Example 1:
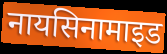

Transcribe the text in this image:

नायसिनामाइड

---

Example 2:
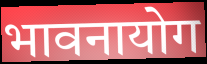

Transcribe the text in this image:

भावनायोग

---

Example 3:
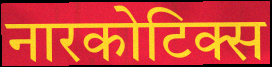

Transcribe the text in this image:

नारकोटिक्स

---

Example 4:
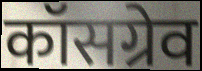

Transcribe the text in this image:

कॉसग्रेव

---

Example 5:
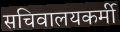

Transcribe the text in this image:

सचिवालयकर्मी